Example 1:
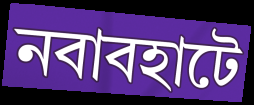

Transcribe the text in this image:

নবাবহাটে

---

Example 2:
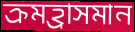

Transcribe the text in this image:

ক্রমহ্রাসমান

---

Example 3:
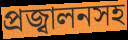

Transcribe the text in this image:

প্রজ্বালনসহ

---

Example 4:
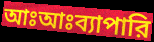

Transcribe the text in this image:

আঃআঃব্যাপারি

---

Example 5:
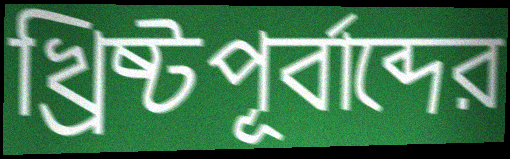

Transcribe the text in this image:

খ্রিষ্টপূর্বাব্দের